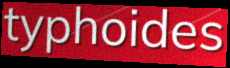
typhoides